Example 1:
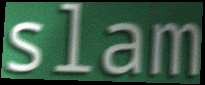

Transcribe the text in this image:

slam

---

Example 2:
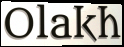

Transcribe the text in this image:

Olakh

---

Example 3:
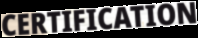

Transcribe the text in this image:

CERTIFICATION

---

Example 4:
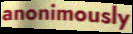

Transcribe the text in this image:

anonimously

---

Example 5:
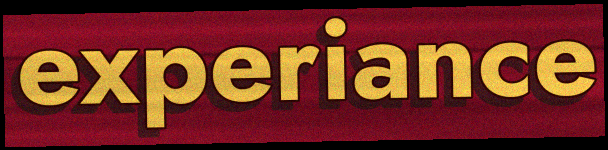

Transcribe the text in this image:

experiance